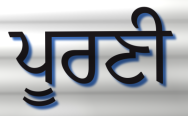
ਪੂਰਣੀ